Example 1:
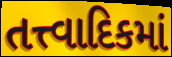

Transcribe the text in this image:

તત્ત્વાદિકમાં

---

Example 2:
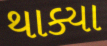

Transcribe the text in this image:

થાક્યા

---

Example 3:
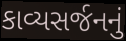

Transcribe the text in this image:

કાવ્યસર્જનનું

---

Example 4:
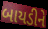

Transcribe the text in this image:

બાયડીને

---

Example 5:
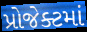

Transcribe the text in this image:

પ્રોજેક્ટમાં